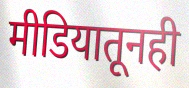
मीडियातूनही